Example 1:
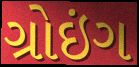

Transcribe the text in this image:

ગ્રોઇંગ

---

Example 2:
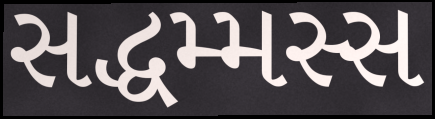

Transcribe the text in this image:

સદ્ધમ્મસ્સ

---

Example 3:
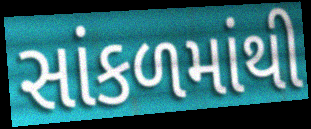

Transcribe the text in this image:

સાંકળમાંથી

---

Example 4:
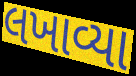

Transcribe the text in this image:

લખાવ્યા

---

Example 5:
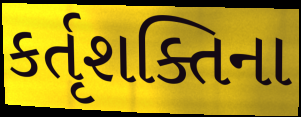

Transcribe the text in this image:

કર્તૃશક્તિના